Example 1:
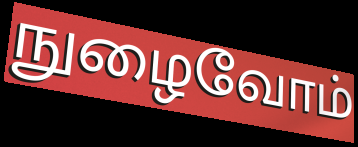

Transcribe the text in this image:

நுழைவோம்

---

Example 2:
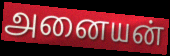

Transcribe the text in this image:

அனையன்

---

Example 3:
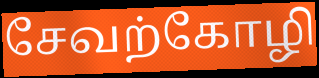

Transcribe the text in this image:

சேவற்கோழி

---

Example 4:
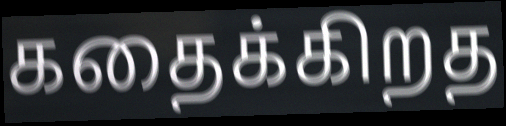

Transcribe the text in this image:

கதைக்கிறத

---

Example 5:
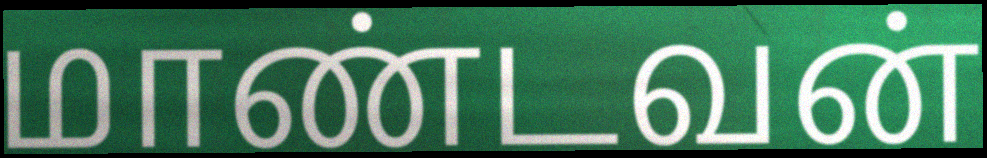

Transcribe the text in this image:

மாண்டவன்